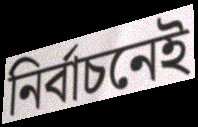
নির্বাচনেই